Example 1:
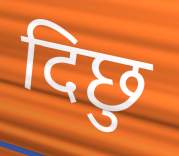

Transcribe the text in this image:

दिछु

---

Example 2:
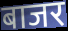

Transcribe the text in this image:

बाजर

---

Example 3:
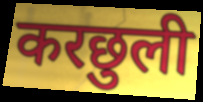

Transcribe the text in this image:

करछुली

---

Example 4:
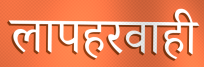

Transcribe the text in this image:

लापहरवाही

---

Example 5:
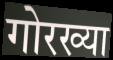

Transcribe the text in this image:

गोरख्या